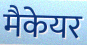
मैकेयर